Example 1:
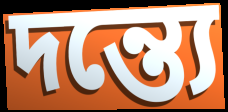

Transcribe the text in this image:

দন্ত্যে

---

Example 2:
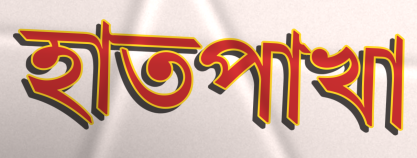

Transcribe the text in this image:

হাতপাখা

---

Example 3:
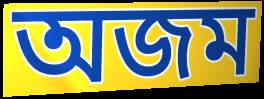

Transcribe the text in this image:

অজম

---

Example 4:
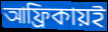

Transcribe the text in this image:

আফ্রিকায়ই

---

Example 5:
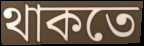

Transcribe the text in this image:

থাকতে